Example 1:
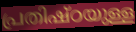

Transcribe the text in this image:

പ്രതിഷ്ഠയുള്ള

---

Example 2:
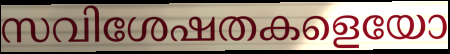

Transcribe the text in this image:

സവിശേഷതകളെയോ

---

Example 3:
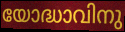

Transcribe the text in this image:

യോദ്ധാവിനു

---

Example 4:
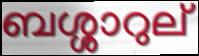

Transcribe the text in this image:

ബശ്ശാറുല്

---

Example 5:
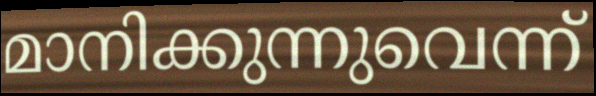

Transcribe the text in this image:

മാനിക്കുന്നുവെന്ന്